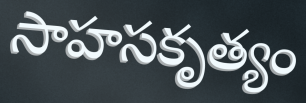
సాహసకృత్యం